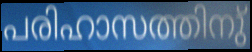
പരിഹാസത്തിനു്